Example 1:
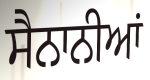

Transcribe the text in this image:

ਸੈਨਾਨੀਆਂ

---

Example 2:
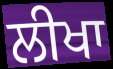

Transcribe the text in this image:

ਲੀਖਾ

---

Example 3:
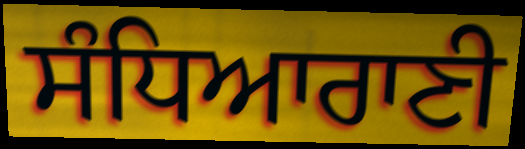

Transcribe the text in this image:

ਸੰਧਿਆਰਾਣੀ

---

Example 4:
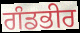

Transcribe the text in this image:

ਗੰਡਭੀਰ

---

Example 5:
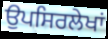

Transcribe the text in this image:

ਉਪਸਿਰਲੇਖਾਂ